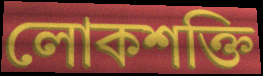
লোকশক্তি